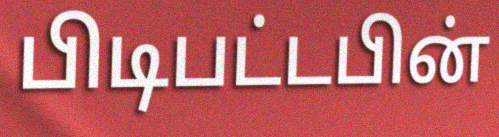
பிடிபட்டபின்